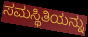
ಸಮಸ್ಥಿತಿಯನ್ನು